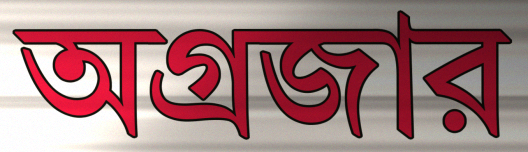
অগ্রজার